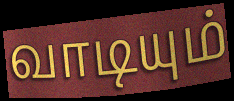
வாடியும்